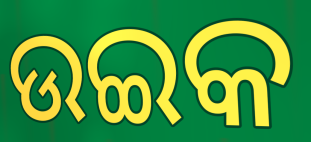
ଉଇକ